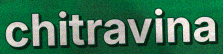
chitravina